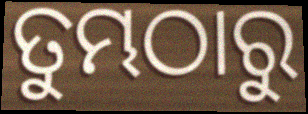
ତୁମ୍ଭଠାରୁ